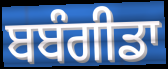
ਬਬੰਗੀਡਾ